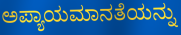
ಅಪ್ಯಾಯಮಾನತೆಯನ್ನು